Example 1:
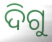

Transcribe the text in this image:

ଦିଗୁ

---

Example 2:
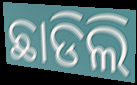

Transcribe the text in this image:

ଛାଡିଲି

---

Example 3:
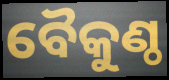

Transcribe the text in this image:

ବୈକୁଣ୍ଠ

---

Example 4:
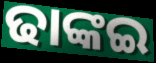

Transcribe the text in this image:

ଢାଙ୍କଇ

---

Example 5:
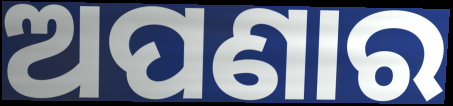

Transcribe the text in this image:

ଅପଣାର